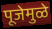
पूजेमुळे